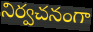
నిర్వచనంగా